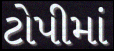
ટોપીમાં